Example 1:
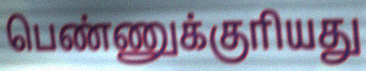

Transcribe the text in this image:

பெண்ணுக்குரியது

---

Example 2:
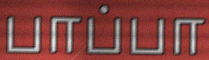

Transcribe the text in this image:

பாப்பா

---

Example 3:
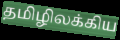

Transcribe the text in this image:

தமிழிலக்கிய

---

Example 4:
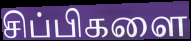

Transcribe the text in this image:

சிப்பிகளை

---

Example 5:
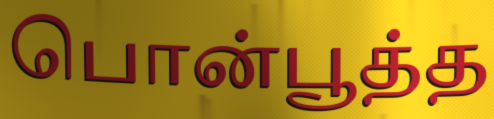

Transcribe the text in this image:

பொன்பூத்த